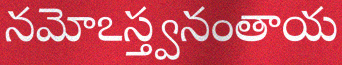
నమోఽస్త్వనంతాయ